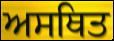
ਅਸਥਿਤ